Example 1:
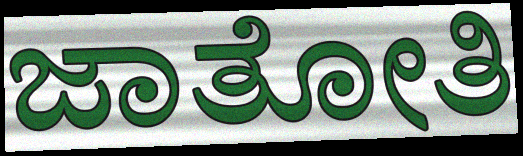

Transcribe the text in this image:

ಜಾತೋತಿ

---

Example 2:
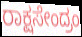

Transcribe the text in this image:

ರಾಕ್ಷಸೇಂದ್ರಂ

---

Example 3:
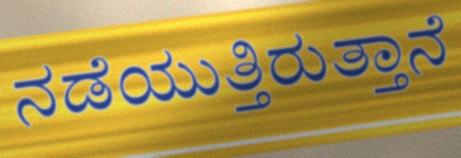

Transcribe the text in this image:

ನಡೆಯುತ್ತಿರುತ್ತಾನೆ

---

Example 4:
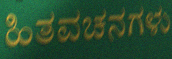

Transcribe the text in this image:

ಹಿತವಚನಗಳು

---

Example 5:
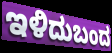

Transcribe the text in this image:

ಇಳಿದುಬಂದ